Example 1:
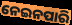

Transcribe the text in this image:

ନେଇନପାରି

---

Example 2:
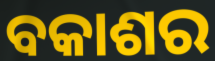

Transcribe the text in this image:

ବକାଶର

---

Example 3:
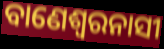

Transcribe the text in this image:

ବାଣେଶ୍ୱରନାସୀ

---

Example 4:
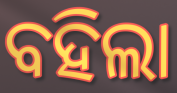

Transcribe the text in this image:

ବହିଲା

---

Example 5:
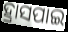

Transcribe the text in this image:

ହ୍ରାସପାଇ